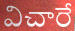
విచారే